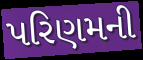
પરિણમની